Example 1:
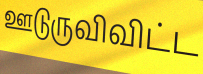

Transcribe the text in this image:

ஊடுருவிவிட்ட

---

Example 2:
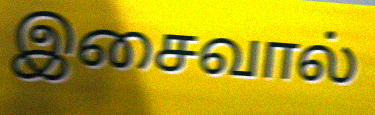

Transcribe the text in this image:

இசைவால்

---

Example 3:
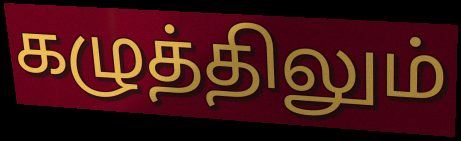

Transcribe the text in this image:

கழுத்திலும்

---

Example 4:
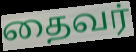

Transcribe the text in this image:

தைவர்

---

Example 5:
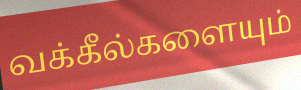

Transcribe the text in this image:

வக்கீல்களையும்